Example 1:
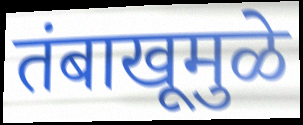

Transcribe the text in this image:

तंबाखूमुळे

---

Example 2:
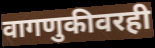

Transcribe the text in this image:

वागणुकीवरही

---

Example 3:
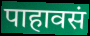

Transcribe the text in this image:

पाहावसं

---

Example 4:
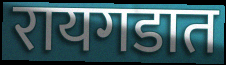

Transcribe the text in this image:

रायगडात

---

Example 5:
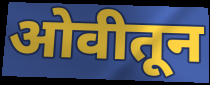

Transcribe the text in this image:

ओवीतून